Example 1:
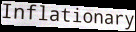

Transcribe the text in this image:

Inflationary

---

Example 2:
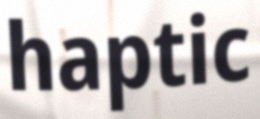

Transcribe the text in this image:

haptic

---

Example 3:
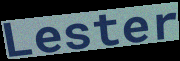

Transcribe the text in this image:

Lester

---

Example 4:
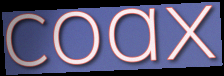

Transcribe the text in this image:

coax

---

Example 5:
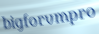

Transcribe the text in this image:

bigforumpro